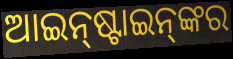
ଆଇନ୍‌ଷ୍ଟାଇନ୍‌ଙ୍କର